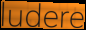
ludere